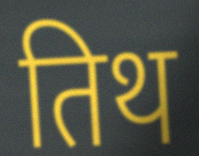
तिथ